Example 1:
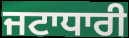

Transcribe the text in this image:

ਜਟਾਧਾਰੀ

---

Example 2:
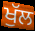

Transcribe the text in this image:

ਖੁੱਲ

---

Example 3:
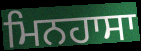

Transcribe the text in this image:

ਮਿਨਹਾਸਾ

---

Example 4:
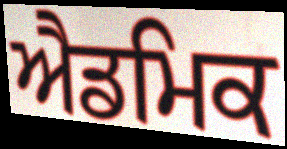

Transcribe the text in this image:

ਐਡਮਿਕ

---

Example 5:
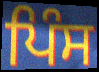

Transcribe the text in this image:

ਪਿੰਸ